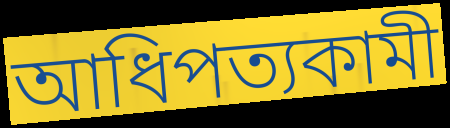
আধিপত্যকামী